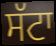
ਸੱਟਾ